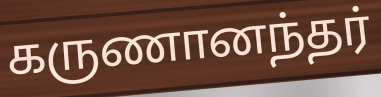
கருணானந்தர்